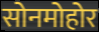
सोनमोहोर